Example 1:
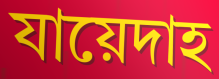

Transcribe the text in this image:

যায়েদাহ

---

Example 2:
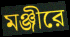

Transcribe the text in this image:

মঞ্জীরে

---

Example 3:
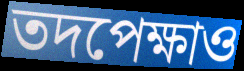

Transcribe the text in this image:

তদপেক্ষাও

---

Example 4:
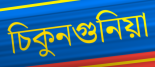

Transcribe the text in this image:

চিকুনগুনিয়া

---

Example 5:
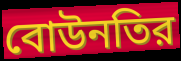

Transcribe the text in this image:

বোউনতির